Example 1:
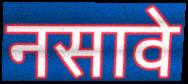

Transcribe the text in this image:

नसावे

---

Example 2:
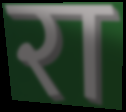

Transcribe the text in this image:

रा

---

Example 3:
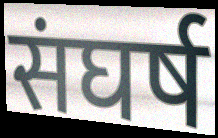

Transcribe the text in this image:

संघर्ष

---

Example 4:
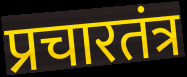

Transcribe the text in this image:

प्रचारतंत्र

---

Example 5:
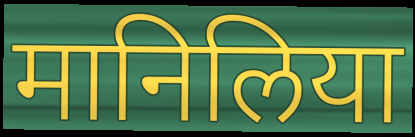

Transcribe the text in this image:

मानिलिया